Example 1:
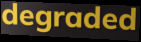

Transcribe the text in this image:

degraded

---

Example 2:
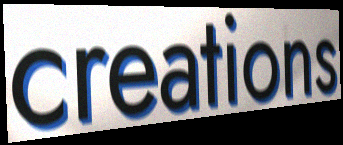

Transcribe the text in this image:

creations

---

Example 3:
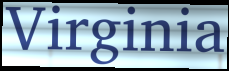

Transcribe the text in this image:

Virginia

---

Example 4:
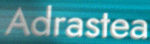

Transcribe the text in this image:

Adrastea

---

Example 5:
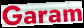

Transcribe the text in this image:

Garam